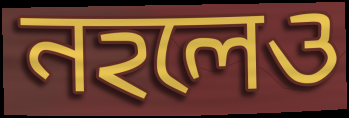
নহলেও